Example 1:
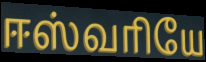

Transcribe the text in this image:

ஈஸ்வரியே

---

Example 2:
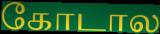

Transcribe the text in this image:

கோடால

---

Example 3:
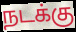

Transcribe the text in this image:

நடக்கு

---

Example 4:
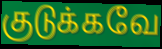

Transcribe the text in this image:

குடுக்கவே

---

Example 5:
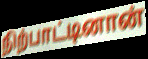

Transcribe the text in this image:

நிற்பாட்டினான்